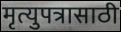
मृत्युपत्रासाठी